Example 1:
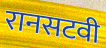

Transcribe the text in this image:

रानसटवी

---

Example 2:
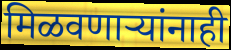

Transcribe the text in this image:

मिळवणाऱ्यांनाही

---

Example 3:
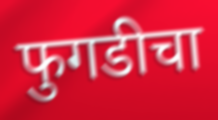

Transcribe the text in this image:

फुगडीचा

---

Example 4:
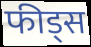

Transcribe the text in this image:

फीड्स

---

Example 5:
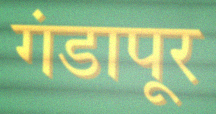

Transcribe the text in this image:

गंडापूर